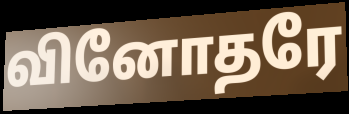
வினோதரே